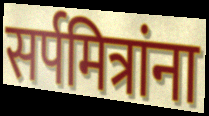
सर्पमित्रांना